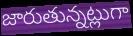
జారుతున్నట్లుగా